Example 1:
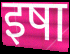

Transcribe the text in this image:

इषा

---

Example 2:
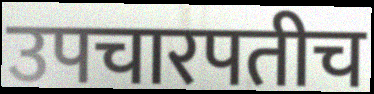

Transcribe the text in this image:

उपचारपतीच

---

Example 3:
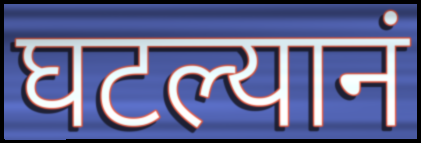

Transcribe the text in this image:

घटल्यानं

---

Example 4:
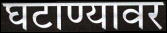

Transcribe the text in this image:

घटाण्यावर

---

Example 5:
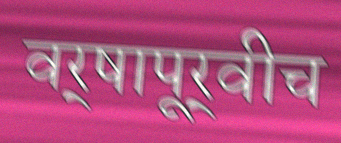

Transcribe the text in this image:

वर्षापूर्वीच